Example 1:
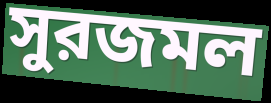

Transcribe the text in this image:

সুরজমল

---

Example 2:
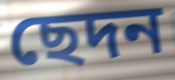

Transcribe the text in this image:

ছেদন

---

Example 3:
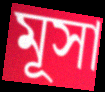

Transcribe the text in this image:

মূসা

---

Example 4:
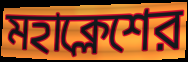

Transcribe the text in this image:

মহাক্লেশের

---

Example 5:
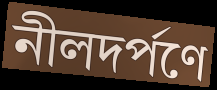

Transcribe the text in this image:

নীলদর্পণে